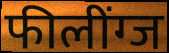
फीलींग्ज